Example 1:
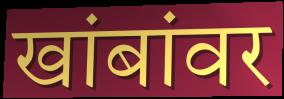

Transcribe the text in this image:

खांबांवर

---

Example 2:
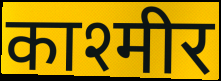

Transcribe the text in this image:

काश्मीर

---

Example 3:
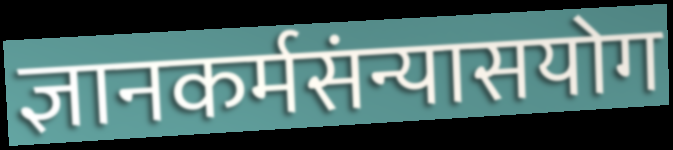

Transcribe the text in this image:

ज्ञानकर्मसंन्यासयोग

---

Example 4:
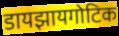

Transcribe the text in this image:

डायझायगोटिक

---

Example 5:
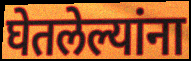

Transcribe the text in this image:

घेतलेल्यांना